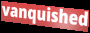
vanquished